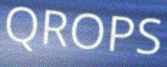
QROPS